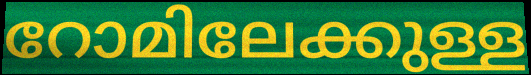
റോമിലേക്കുള്ള